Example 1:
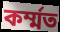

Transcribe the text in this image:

কৰ্ম্মত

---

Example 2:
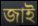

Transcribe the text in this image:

জাই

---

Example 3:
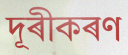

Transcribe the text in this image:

দূৰীকৰণ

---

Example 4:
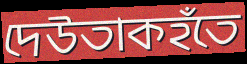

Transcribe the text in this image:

দেউতাকহঁতে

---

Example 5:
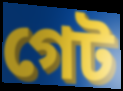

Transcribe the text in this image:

গেট